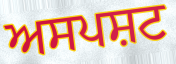
ਅਸਪਸ਼ਟ